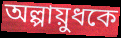
অল্পায়ুধকে